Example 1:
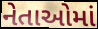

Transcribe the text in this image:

નેતાઓમાં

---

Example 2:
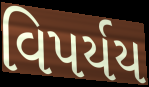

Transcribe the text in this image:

વિપર્યય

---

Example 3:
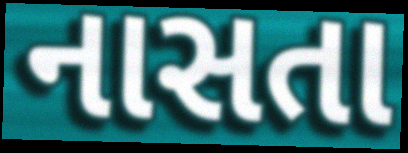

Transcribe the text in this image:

નાસતા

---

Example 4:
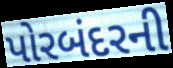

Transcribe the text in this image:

પોરબંદરની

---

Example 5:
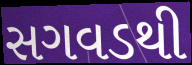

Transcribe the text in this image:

સગવડથી